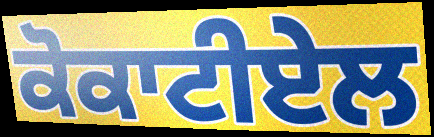
ਕੋਕਾਟੀਏਲ